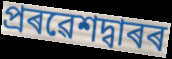
প্ৰৰৱেশদ্বাৰৰ